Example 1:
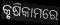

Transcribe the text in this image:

କୃଷିକାମରେ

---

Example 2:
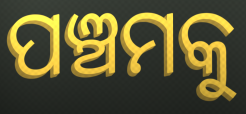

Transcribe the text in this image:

ପଞ୍ଚମକୁ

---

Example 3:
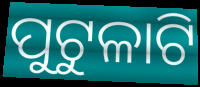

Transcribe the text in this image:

ପୁଟୁଳାଟି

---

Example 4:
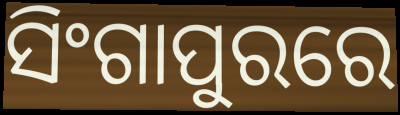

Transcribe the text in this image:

ସିଂଗାପୁରରେ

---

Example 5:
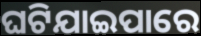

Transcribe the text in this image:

ଘଟିଯାଇପାରେ